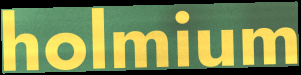
holmium